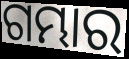
ଗମ୍ଭାର